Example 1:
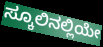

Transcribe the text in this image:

ಸ್ಕೂಲಿನಲ್ಲಿಯೇ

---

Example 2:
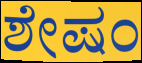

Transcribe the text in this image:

ಶೇಷಂ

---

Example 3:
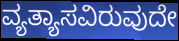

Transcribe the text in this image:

ವ್ಯತ್ಯಾಸವಿರುವುದೇ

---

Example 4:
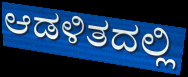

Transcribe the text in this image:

ಆಡಳಿತದಲ್ಲಿ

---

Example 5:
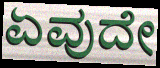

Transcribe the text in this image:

ಏವುದೇ